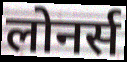
लोनर्स